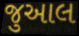
જુઆલ